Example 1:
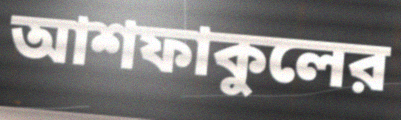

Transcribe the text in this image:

আশফাকুলের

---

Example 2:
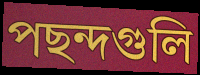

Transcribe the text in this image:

পছন্দগুলি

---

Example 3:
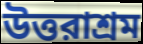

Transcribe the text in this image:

উত্তরাশ্রম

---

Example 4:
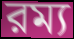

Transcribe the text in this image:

রম্য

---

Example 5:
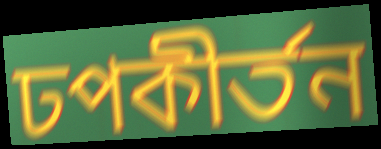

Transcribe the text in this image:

ঢপকীর্তন